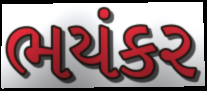
ભયંકર